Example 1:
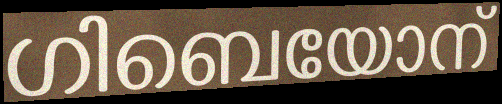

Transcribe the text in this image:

ഗിബെയോന്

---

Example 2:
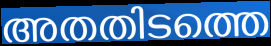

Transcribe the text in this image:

അതതിടത്തെ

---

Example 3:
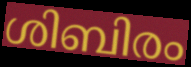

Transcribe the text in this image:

ശിബിരം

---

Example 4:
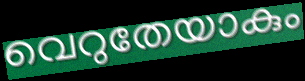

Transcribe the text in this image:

വെറുതേയാകും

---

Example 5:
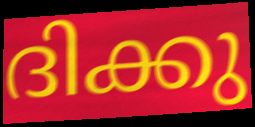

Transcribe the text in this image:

ദിക്കു